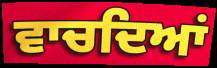
ਵਾਚਦਿਆਂ